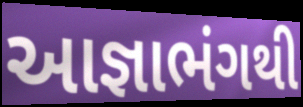
આજ્ઞાભંગથી